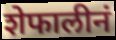
शेफालीनं